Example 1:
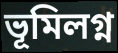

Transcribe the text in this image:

ভূমিলগ্ন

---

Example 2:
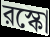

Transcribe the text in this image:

রস্কো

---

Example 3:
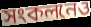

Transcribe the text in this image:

সংকলনেও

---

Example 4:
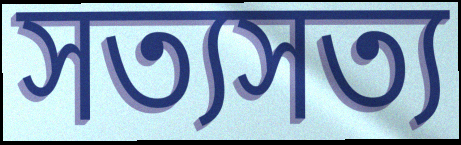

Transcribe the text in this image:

সত্যসত্য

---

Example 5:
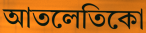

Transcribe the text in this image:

আতলেতিকো